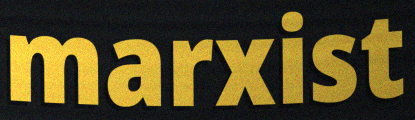
marxist